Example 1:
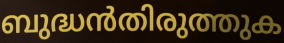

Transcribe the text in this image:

ബുദ്ധൻതിരുത്തുക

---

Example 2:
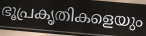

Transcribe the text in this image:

ഭൂപ്രകൃതികളെയും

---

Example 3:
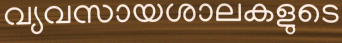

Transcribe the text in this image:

വ്യവസായശാലകളുടെ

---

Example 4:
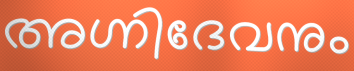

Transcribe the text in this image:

അഗ്നിദേവനും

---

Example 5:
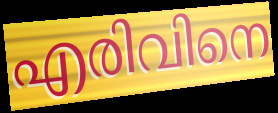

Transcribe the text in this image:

എരിവിനെ